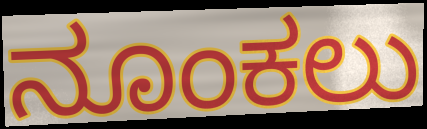
ನೂಂಕಲು